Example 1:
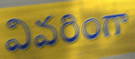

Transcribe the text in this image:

వివరింగా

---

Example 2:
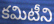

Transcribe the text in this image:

కమిటీని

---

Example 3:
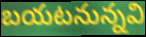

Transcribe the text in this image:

బయటనున్నవి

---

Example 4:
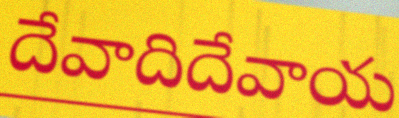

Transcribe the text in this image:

దేవాదిదేవాయ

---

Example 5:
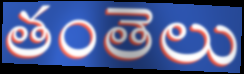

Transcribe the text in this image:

తంతెలు